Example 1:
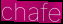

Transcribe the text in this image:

chafe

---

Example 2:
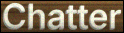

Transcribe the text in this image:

Chatter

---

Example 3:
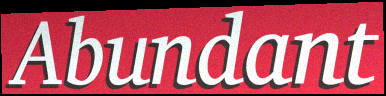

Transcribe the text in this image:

Abundant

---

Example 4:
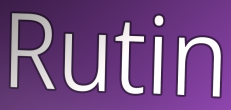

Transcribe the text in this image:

Rutin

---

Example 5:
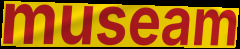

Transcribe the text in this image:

museam